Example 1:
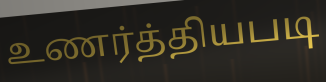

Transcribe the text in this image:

உணர்த்தியபடி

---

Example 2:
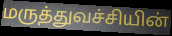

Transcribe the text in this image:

மருத்துவச்சியின்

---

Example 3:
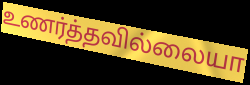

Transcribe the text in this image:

உணர்த்தவில்லையா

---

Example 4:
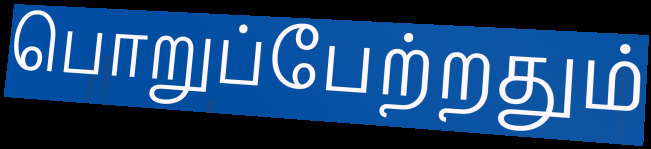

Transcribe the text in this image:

பொறுப்பேற்றதும்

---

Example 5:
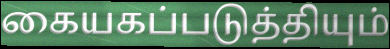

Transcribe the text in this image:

கையகப்படுத்தியும்